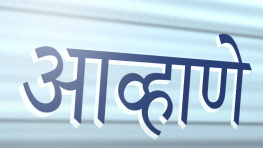
आव्हाणे